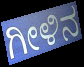
ಗೀಳಿನ